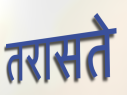
तरासते